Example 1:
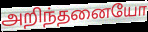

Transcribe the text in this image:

அறிந்தனையோ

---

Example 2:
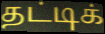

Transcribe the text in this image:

தட்டிக்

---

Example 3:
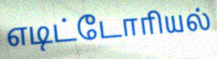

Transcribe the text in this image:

எடிட்டோரியல்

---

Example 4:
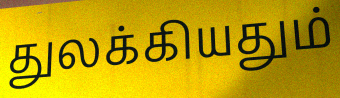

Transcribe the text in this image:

துலக்கியதும்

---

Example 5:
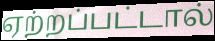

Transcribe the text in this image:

ஏற்றப்பட்டால்